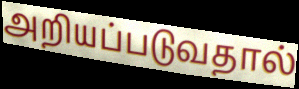
அறியப்படுவதால்